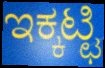
ಇಕ್ಕಟ್ಟಿ